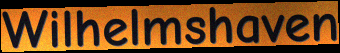
Wilhelmshaven